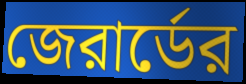
জেরার্ডের